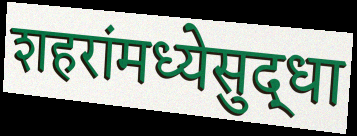
शहरांमध्येसुद्धा